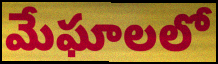
మేఘాలలో